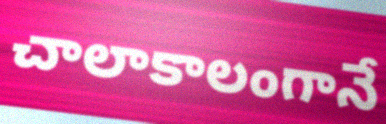
చాలాకాలంగానే